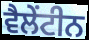
ਵੈਲੇਂਟੀਨ